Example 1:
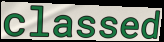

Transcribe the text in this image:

classed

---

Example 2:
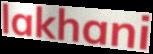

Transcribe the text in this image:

lakhani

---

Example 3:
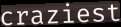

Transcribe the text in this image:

craziest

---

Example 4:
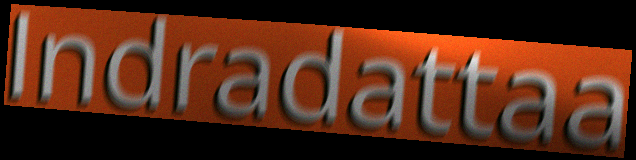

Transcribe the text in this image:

Indradattaa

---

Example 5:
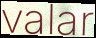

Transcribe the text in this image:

valar